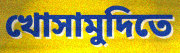
খোসামুদিতে